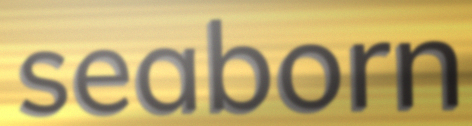
seaborn